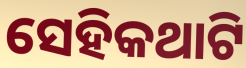
ସେହିକଥାଟି